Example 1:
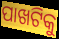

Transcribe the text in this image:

ପାଖଟିକୁ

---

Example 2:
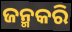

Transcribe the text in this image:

ଜନ୍ମକରି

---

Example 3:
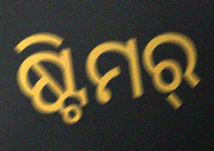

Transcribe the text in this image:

ଷ୍ଟିମର୍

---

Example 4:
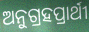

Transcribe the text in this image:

ଅନୁଗ୍ରହପ୍ରାର୍ଥୀ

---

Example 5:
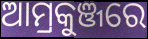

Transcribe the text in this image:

ଆମ୍ରକୁଞ୍ଜରେ